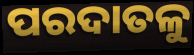
ପରଦାତଳୁ